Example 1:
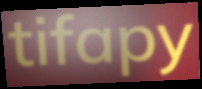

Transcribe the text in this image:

tifapy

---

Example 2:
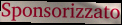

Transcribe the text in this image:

Sponsorizzato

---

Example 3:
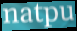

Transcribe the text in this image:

natpu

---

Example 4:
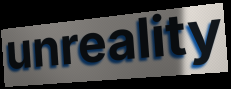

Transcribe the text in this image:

unreality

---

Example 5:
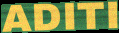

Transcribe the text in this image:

ADITI